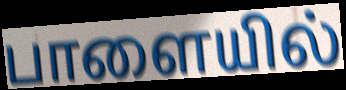
பாளையில்